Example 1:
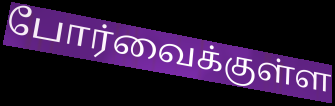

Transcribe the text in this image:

போர்வைக்குள்ள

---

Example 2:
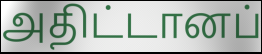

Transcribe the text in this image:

அதிட்டானப்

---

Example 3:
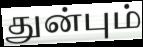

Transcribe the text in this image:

துன்பும்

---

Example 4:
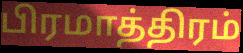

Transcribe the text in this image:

பிரமாத்திரம்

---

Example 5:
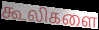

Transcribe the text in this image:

கூலிகளை